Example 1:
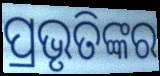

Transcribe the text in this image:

ପ୍ରଭୃତିଙ୍କର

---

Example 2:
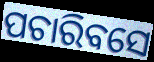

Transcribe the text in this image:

ପଚାରିବସେ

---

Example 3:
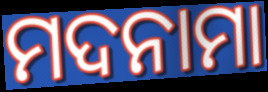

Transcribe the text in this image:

ମଦନାମା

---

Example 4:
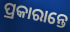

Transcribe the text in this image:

ପ୍ରକାରାନ୍ତେ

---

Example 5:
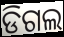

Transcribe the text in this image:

ଡିଗଲ